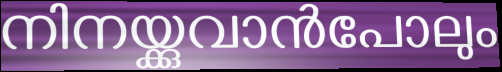
നിനയ്ക്കുവാൻപോലും